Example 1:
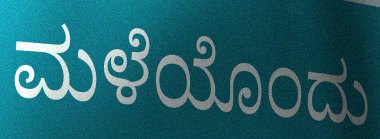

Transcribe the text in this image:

ಮಳೆಯೊಂದು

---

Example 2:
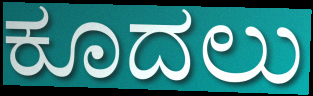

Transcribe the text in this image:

ಕೂದಲು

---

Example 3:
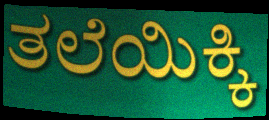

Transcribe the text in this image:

ತಲೆಯಿಕ್ಕಿ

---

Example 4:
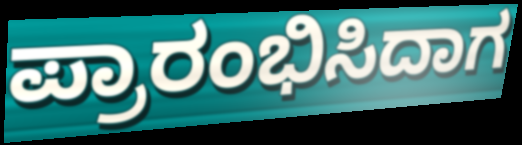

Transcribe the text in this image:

ಪ್ರಾರಂಭಿಸಿದಾಗ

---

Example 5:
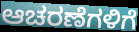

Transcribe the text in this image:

ಆಚರಣೆಗಳಿಗೆ